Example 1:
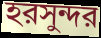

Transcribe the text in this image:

হরসুন্দর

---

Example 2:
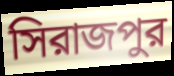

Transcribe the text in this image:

সিরাজপুর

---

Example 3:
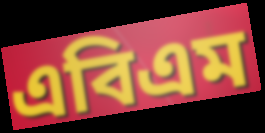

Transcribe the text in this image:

এবিএম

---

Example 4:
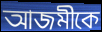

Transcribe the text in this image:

আজমীকে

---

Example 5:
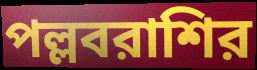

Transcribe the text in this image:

পল্লবরাশির